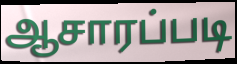
ஆசாரப்படி